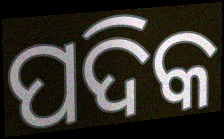
ପଦିକ